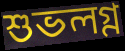
শুভলগ্ন